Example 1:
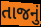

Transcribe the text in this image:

તાજનું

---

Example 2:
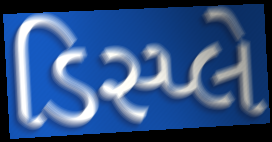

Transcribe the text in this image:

ડિસ્પ્લે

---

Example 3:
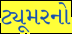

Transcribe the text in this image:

ટ્યૂમરનો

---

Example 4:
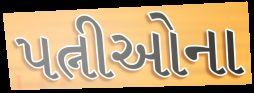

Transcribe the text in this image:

પત્નીઓના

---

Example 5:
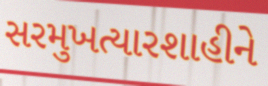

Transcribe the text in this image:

સરમુખત્યારશાહીને